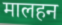
मालहन